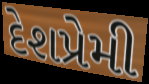
દેશપ્રેમી